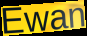
Ewan